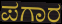
ಪಗಾರ